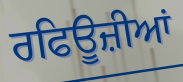
ਰਫਿਊਜ਼ੀਆਂ